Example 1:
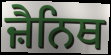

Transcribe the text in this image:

ਜ਼ੈਨਿਥ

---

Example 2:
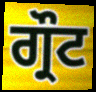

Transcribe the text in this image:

ਗ੍ਰੌਟ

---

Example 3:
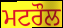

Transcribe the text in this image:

ਮਟਰੌਲ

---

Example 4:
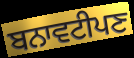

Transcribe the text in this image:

ਬਨਾਵਟੀਪਣ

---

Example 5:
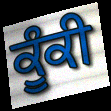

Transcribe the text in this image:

ਕੂੰਕੀ